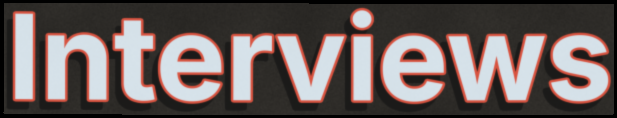
Interviews